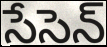
సేసెన్